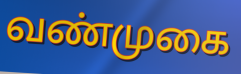
வண்முகை